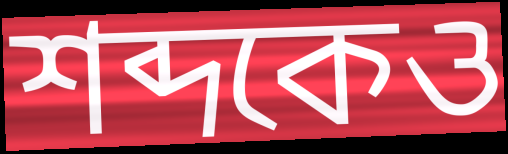
শব্দকেও